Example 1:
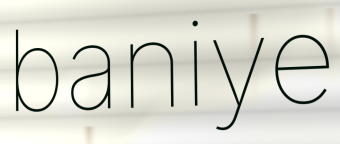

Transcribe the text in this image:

baniye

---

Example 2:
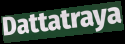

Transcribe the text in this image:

Dattatraya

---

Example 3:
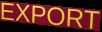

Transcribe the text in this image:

EXPORT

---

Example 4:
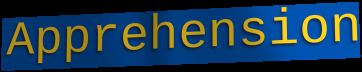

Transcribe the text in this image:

Apprehension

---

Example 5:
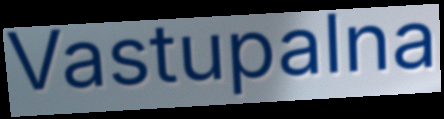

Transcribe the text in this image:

Vastupalna